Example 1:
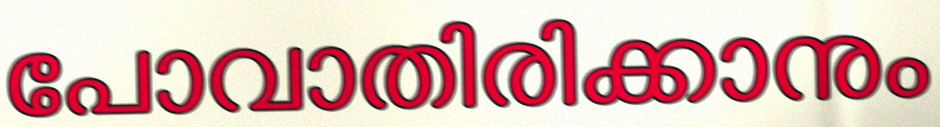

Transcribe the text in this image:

പോവാതിരിക്കാനും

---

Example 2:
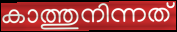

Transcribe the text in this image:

കാത്തുനിന്നത്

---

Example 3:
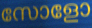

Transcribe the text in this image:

സോളോ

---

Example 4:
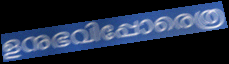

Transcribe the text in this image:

ളനുഭവിപ്പോരെത്ര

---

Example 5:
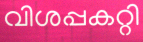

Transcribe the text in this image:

വിശപ്പകറ്റി